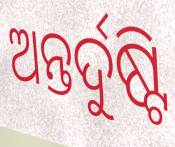
ଅନ୍ତର୍ଦୁଷ୍ଟି